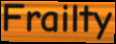
Frailty